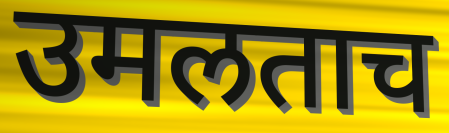
उमलताच